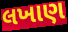
લખાણ